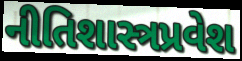
નીતિશાસ્ત્રપ્રવેશ